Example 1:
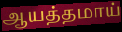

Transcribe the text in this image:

ஆயத்தமாய்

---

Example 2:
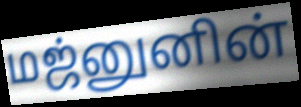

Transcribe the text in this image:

மஜ்னுனின்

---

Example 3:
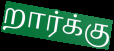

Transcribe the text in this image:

றார்க்கு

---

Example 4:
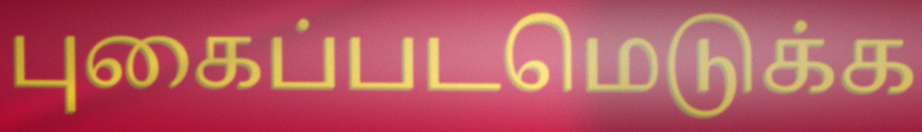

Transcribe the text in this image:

புகைப்படமெடுக்க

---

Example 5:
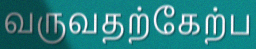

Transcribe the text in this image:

வருவதற்கேற்ப